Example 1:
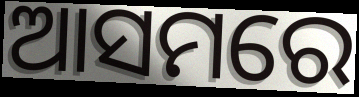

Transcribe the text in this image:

ଆସମରେ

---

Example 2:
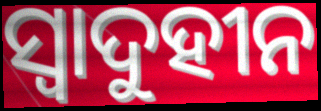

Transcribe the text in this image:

ସ୍ୱାଦୁହୀନ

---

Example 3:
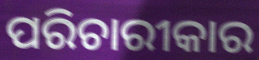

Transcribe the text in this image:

ପରିଚାରୀକାର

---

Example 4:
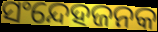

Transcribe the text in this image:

ସଂନ୍ଦେହଜନକ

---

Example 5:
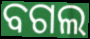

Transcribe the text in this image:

ବଗଲ